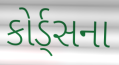
કોર્ડ્સના